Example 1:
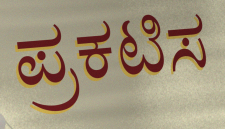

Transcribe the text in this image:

ಪ್ರಕಟಿಸ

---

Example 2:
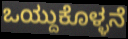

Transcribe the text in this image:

ಒಯ್ದುಕೊಳ್ಳನೆ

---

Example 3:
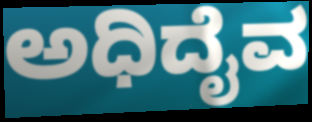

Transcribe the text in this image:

ಅಧಿದೈವ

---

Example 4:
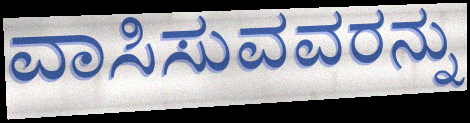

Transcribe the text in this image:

ವಾಸಿಸುವವರನ್ನು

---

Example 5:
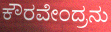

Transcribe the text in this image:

ಕೌರವೇಂದ್ರನು